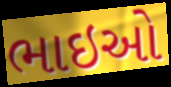
ભાઇઓ